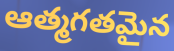
ఆత్మగతమైన